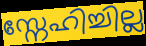
സ്നേഹിച്ചില്ല